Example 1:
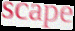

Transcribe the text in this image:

scape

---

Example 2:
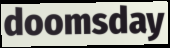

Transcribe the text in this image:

doomsday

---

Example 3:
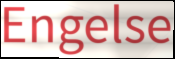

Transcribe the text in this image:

Engelse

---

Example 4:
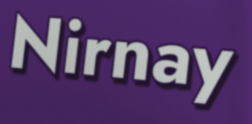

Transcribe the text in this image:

Nirnay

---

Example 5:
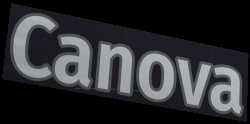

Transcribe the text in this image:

Canova